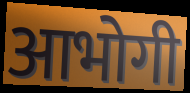
आभोगी